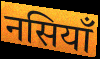
नसियाँ